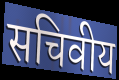
सचिवीय